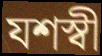
যশস্বী